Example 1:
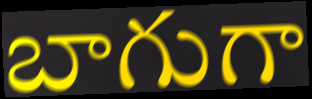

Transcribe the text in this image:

బాగుగా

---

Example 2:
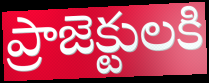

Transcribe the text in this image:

ప్రాజెక్టులకి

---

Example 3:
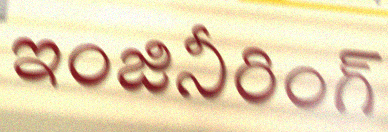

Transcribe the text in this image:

ఇంజినీరింగ్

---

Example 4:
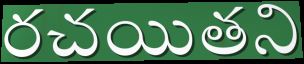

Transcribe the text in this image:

రచయితని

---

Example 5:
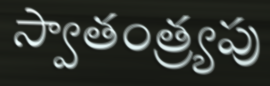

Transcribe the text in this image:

స్వాతంత్ర్యపు